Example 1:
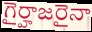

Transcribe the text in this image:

గైర్హాజరైనా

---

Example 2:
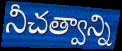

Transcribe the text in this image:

నీచత్వాన్ని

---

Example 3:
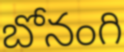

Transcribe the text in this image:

బోనంగి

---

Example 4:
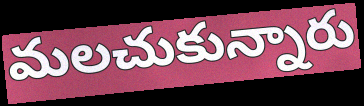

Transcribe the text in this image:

మలచుకున్నారు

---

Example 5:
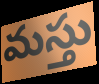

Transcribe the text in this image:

మస్తు